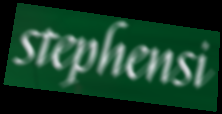
stephensi